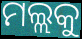
ମଲ୍ଲକୁ